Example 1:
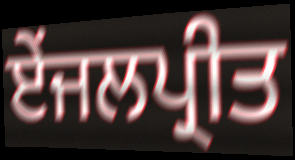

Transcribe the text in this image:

ਏਂਜਲਪ੍ਰੀਤ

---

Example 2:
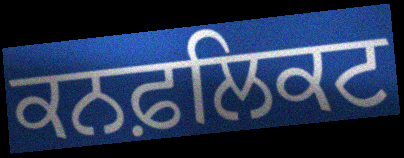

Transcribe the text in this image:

ਕਨਫ਼ਲਿਕਟ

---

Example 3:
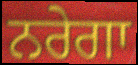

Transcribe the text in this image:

ਨਰੇਗਾ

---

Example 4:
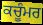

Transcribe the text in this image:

ਕਚੂੰਮਰ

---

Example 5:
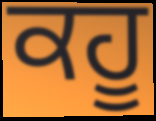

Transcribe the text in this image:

ਕਹੂ